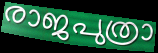
രാജപുത്രാ